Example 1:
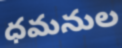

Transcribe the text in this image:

ధమనుల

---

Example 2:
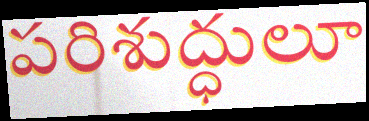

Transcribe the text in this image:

పరిశుద్ధులూ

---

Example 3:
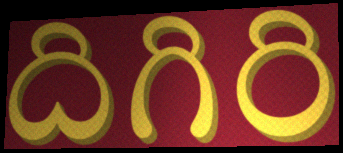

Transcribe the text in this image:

దిగిరి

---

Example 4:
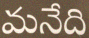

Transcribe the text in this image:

మనేది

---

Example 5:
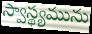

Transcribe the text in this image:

స్వాస్థ్యమును